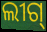
ଲୀଗ୍